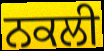
ਨਕਲੀ